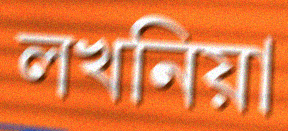
লখনিয়া